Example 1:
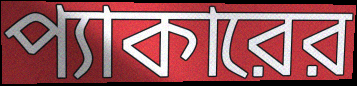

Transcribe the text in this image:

প্যাকারের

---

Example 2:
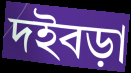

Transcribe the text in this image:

দইবড়া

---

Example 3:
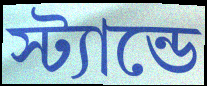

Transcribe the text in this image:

স্ট্যান্ডে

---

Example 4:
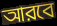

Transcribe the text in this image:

আরবে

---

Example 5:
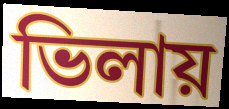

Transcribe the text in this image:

ভিলায়